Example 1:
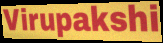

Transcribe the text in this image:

Virupakshi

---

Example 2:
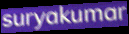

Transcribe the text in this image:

suryakumar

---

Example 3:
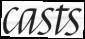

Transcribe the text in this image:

casts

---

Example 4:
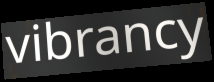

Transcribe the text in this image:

vibrancy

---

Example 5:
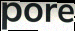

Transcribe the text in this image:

pore